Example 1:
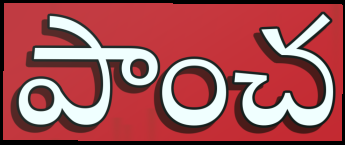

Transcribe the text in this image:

పాంచ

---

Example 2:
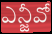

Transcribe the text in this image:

ఎన్జీవో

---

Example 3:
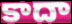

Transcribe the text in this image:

కాదా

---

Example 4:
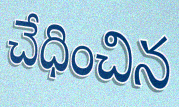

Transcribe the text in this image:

చేధించిన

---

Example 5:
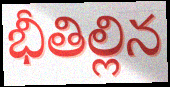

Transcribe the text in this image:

భీతిల్లిన